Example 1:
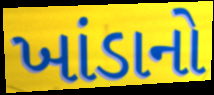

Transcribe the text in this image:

ખાંડાનો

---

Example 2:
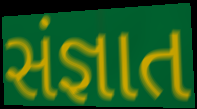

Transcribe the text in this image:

સંજ્ઞાત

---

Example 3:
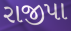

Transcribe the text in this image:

રાજીપા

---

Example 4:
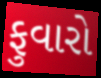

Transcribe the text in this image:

ફુવારો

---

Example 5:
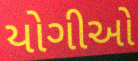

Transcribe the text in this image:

યોગીઓ